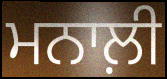
ਮਨਾਲ਼ੀ